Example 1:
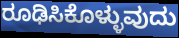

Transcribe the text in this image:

ರೂಢಿಸಿಕೊಳ್ಳುವುದು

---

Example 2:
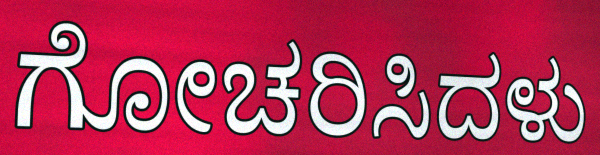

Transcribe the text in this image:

ಗೋಚರಿಸಿದಳು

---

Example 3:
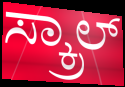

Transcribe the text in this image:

ಸ್ಕ್ರಾಲ್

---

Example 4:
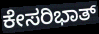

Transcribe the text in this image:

ಕೇಸರಿಭಾತ್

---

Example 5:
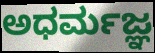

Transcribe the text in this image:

ಅಧರ್ಮಜ್ಞ